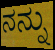
ನನ್ನು